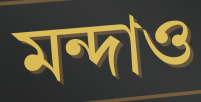
মন্দাও